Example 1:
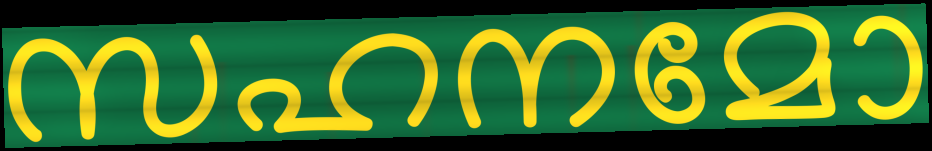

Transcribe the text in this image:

സഹനമോ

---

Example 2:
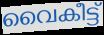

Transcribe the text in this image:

വൈകീട്ട്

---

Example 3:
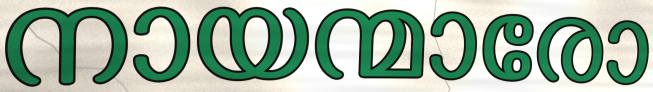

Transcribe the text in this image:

നായന്മാരോ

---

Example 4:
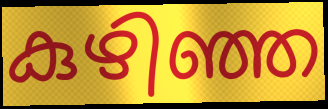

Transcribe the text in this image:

കുഴിഞ്ഞ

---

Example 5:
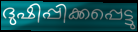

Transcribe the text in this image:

ദുഷിപ്പിക്കപ്പെട്ടു